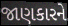
જાણકારને